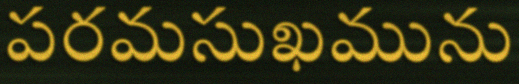
పరమసుఖమును